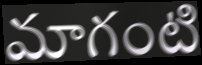
మాగంటి